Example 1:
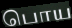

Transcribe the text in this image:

பொய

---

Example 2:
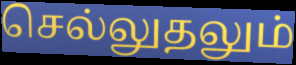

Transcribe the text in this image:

செல்லுதலும்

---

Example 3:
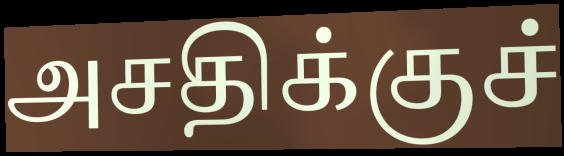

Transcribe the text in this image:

அசதிக்குச்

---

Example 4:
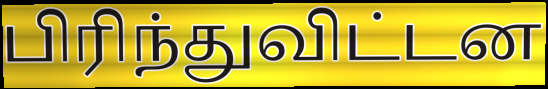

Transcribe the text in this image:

பிரிந்துவிட்டன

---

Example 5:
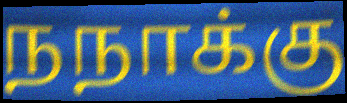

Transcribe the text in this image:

நநாக்கு